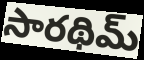
సారథిమ్